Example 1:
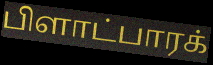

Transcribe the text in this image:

பிளாட்பாரக்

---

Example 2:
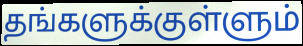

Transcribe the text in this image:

தங்களுக்குள்ளும்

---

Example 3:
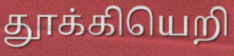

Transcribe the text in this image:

தூக்கியெறி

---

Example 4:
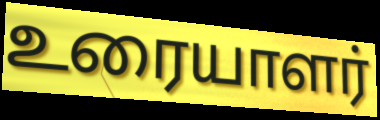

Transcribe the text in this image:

உரையாளர்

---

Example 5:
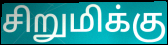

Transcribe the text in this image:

சிறுமிக்கு